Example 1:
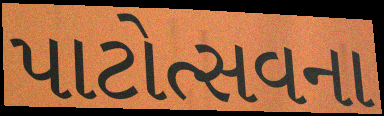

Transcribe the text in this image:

પાટોત્સવના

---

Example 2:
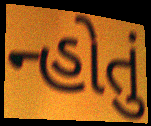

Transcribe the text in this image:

ન્હોતું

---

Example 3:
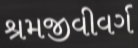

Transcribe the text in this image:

શ્રમજીવીવર્ગ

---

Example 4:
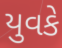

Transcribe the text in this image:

યુવકે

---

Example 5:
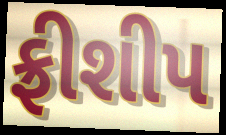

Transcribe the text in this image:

ફ્રીશીપ